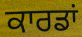
ਕਾਰਡਾਂ